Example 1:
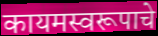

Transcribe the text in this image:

कायमस्वरूपाचे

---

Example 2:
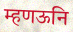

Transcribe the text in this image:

म्हणऊनि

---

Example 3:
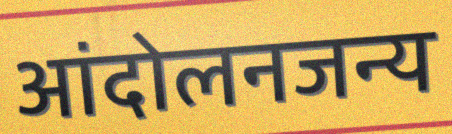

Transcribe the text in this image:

आंदोलनजन्य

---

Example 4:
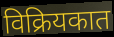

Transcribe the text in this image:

विक्रियकात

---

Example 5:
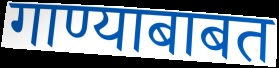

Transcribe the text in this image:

गाण्याबाबत